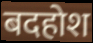
बदहोश